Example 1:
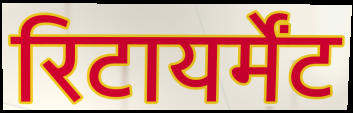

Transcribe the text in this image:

रिटायर्मेंट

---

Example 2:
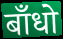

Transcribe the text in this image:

बाँधो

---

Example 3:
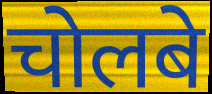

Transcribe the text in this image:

चोलबे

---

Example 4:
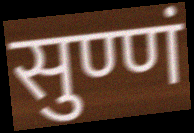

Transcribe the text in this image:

सुण्णं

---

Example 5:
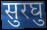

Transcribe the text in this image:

सुरघु